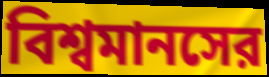
বিশ্বমানসের